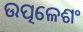
ଉତ୍ପଳେଶଂ